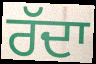
ਰੱਦਾ